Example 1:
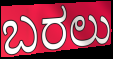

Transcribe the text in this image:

ಬರಲು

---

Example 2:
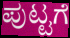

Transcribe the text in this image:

ಪುಟ್ಟಗೆ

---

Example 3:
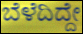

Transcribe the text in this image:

ಬೆಳೆದಿದ್ದೇ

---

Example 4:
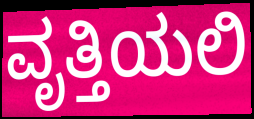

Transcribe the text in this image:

ವೃತ್ತಿಯಲಿ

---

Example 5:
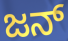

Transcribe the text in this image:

ಜನ್